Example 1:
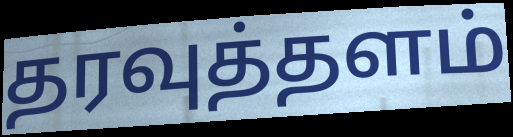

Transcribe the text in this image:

தரவுத்தளம்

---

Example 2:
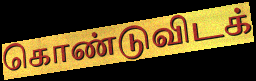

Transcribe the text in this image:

கொண்டுவிடக்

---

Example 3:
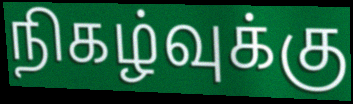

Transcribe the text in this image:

நிகழ்வுக்கு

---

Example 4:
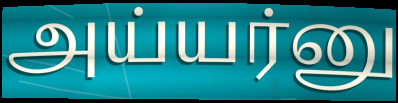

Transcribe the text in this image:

அய்யர்னு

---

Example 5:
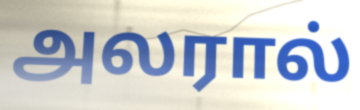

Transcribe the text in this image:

அலரால்